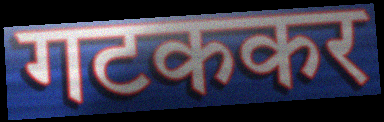
गटककर